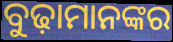
ବୁଢ଼ାମାନଙ୍କର